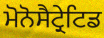
ਮੋਨੋਸੈਟ੍ਰੇਟਿਡ